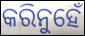
କରିନୁହେଁ